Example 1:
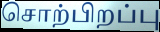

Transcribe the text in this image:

சொற்பிறப்பு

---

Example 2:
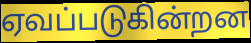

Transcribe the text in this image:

ஏவப்படுகின்றன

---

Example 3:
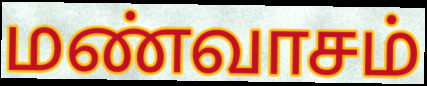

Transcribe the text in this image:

மண்வாசம்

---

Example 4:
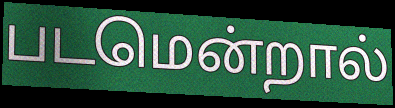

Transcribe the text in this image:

படமென்றால்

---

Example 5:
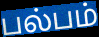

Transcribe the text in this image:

பல்பம்